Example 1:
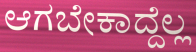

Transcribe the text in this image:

ಆಗಬೇಕಾದ್ದೆಲ್ಲ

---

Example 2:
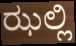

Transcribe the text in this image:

ಝಲ್ಲಿ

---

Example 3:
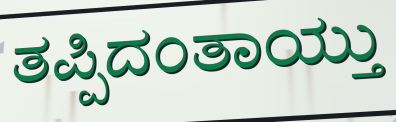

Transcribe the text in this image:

ತಪ್ಪಿದಂತಾಯ್ತು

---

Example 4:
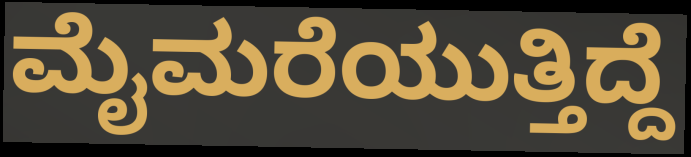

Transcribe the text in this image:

ಮೈಮರೆಯುತ್ತಿದ್ದೆ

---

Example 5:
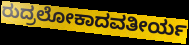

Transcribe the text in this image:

ರುದ್ರಲೋಕಾದವತೀರ್ಯ